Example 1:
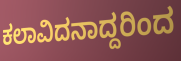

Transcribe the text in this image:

ಕಲಾವಿದನಾದ್ದರಿಂದ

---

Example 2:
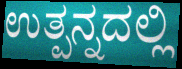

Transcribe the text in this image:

ಉತ್ಪನ್ನದಲ್ಲಿ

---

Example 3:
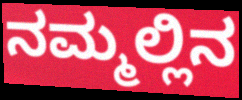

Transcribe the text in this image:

ನಮ್ಮಲ್ಲಿನ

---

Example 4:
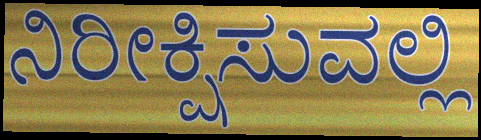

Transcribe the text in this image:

ನಿರೀಕ್ಷಿಸುವಲ್ಲಿ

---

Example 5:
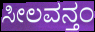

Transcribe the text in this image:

ಸೀಲವನ್ತಂ